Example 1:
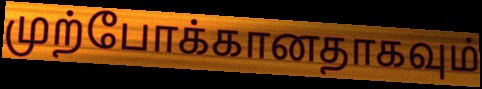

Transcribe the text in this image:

முற்போக்கானதாகவும்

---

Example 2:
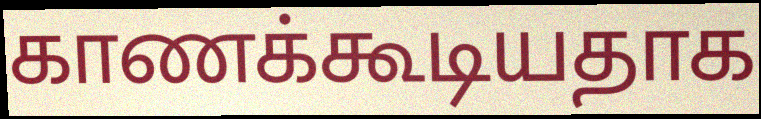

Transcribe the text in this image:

காணக்கூடியதாக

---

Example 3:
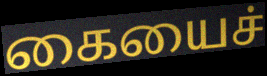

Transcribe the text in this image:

கையைச்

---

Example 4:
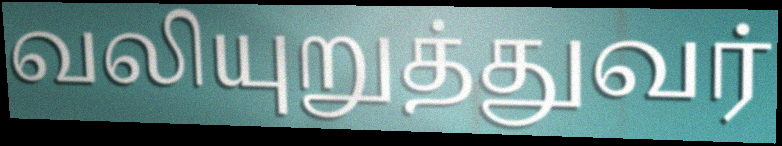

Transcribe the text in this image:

வலியுறுத்துவர்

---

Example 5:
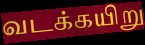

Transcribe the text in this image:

வடக்கயிறு